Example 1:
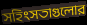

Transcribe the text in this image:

সহিংসতাগুলোর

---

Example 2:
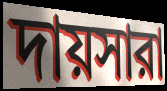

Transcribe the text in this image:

দায়সারা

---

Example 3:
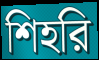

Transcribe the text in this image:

শিহরি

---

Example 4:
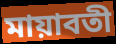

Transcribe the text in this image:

মায়াবতী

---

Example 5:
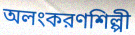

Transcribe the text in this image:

অলংকরণশিল্পী